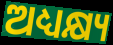
ଅଧ୍ୟକ୍ଷ୍ୟ